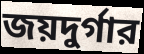
জয়দুর্গার